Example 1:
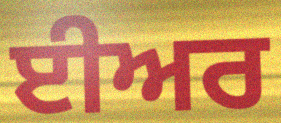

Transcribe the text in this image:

ਈਅਰ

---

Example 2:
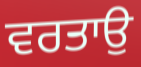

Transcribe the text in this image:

ਵਰਤਾਉ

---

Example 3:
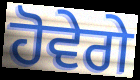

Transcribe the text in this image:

ਹੋਵੇਗੇ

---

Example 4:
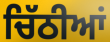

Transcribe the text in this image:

ਚਿੱਠੀਆਂ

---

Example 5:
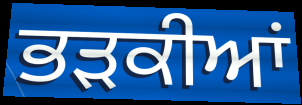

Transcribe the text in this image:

ਭੜਕੀਆਂ